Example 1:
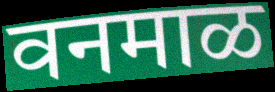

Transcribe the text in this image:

वनमाळ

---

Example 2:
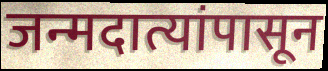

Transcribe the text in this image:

जन्मदात्यांपासून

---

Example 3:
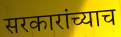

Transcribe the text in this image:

सरकारांच्याच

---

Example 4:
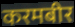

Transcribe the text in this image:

करमबीर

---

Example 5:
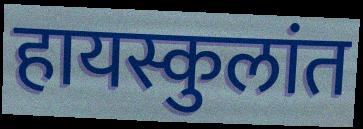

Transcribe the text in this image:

हायस्कुलांत